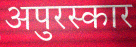
अपुरस्कार